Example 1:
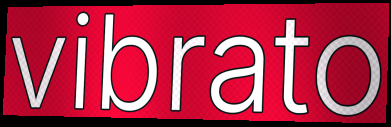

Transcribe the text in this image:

vibrato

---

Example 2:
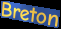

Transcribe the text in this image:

Breton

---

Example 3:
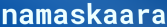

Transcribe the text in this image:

namaskaara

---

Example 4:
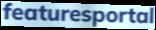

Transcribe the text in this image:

featuresportal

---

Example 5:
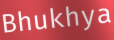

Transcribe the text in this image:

Bhukhya